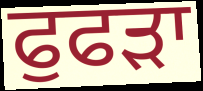
ਫੁਫੜਾ